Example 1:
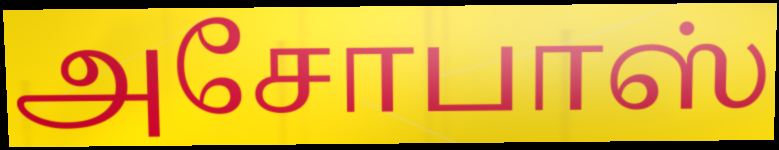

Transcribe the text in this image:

அசோபாஸ்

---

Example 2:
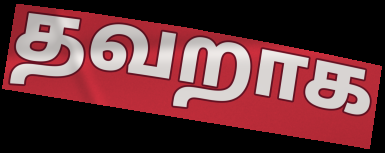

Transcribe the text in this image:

தவறாக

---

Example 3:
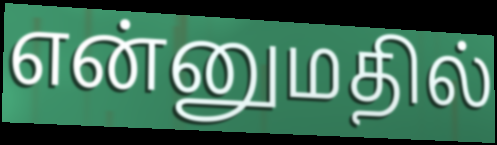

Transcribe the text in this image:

என்னுமதில்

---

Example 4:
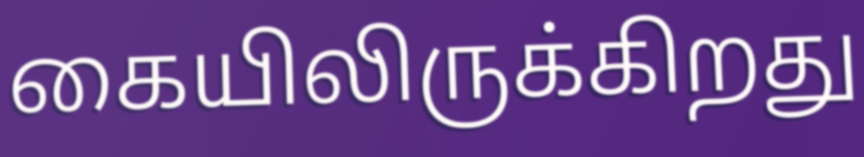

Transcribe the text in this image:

கையிலிருக்கிறது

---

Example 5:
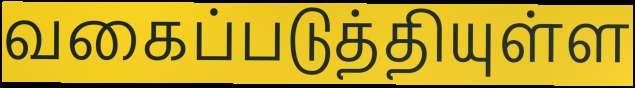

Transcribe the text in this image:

வகைப்படுத்தியுள்ள